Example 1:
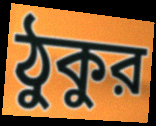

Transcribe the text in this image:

ঠুকুর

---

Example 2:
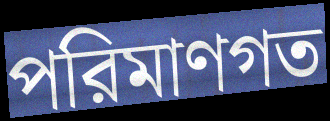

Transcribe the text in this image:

পরিমাণগত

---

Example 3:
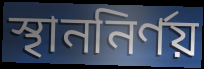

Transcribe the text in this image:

স্থাননির্ণয়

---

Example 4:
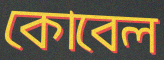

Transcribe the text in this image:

কোবেল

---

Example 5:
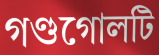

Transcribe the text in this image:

গণ্ডগোলটি